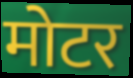
मोटर